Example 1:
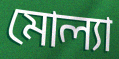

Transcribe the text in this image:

মোল্যা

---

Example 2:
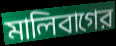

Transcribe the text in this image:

মালিবাগের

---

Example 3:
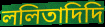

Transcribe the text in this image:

ললিতাদিদি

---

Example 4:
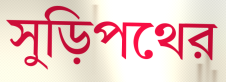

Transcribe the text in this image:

সুড়িপথের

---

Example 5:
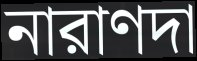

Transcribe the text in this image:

নারাণদা